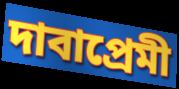
দাবাপ্রেমী